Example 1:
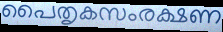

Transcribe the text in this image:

പൈതൃകസംരക്ഷണ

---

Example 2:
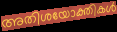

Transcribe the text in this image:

അതിശയോക്തികൾ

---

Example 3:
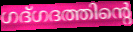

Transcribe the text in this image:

ഗദ്ഗദത്തിന്റെ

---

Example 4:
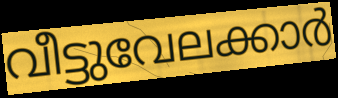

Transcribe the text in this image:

വീട്ടുവേലക്കാർ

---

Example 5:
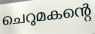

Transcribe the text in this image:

ചെറുമകന്റെ